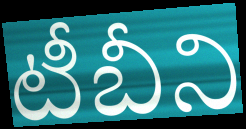
టీబీని